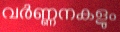
വർണ്ണനകളും